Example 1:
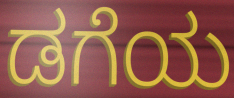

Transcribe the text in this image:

ಡಗೆಯ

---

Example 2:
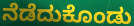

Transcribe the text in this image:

ನೆಡೆದುಕೊಂಡು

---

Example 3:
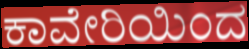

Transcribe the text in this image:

ಕಾವೇರಿಯಿಂದ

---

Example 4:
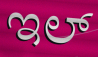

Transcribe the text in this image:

ಇಲ್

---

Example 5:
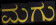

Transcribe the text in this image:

ಮಗು